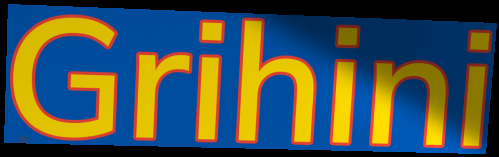
Grihini